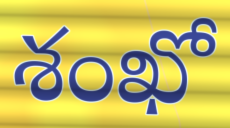
శంఖో